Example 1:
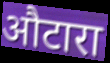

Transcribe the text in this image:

औटारा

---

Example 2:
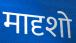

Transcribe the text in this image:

मादृशो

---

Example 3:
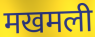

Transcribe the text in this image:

मखमली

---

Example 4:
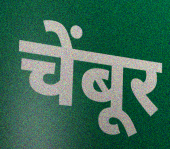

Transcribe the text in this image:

चेंबूर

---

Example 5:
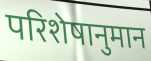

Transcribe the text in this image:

परिशेषानुमान